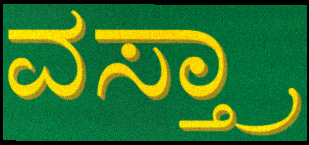
ವಸ್ತ್ರಾ